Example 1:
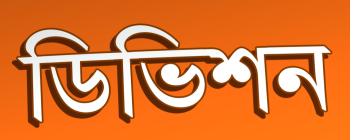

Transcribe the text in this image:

ডিভিশন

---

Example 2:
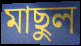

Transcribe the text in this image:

মাছুল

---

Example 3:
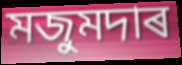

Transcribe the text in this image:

মজুমদাৰ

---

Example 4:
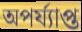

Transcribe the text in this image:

অপৰ্য্যাপ্ত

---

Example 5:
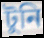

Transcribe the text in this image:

টুনি